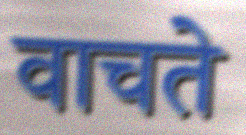
वाचते